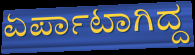
ಏರ್ಪಾಟಾಗಿದ್ದ